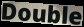
Double